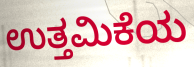
ಉತ್ತಮಿಕೆಯ